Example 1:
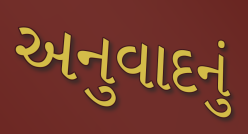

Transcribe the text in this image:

અનુવાદનું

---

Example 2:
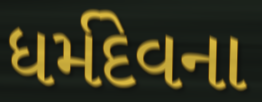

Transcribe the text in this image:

ધર્મદેવના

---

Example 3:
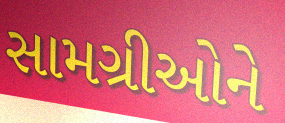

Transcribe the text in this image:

સામગ્રીઓને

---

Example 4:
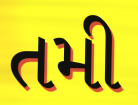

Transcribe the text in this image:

તમી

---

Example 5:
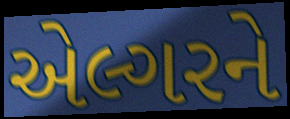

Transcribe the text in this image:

એલ્ગરને